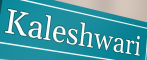
Kaleshwari